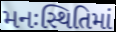
મનઃસ્થિતિમાં